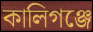
কালিগঞ্জে